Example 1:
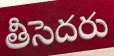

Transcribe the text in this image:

తీసెదరు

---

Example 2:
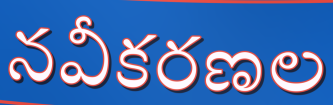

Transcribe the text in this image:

నవీకరణల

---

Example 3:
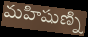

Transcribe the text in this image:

మహిషుణ్ని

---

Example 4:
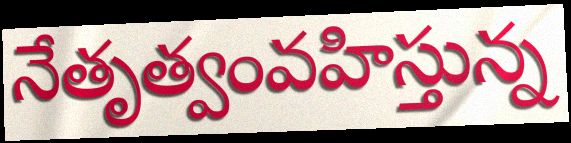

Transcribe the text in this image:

నేతృత్వంవహిస్తున్న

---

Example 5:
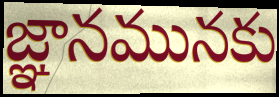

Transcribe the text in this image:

జ్ఞానమునకు